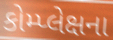
કોમ્પ્લેક્ષના